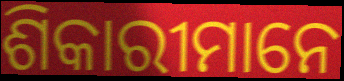
ଶିକାରୀମାନେ